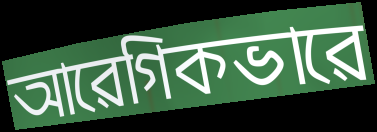
আৱেগিকভাৱে